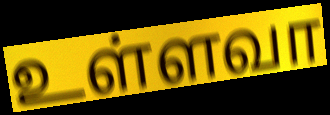
உள்ளவா